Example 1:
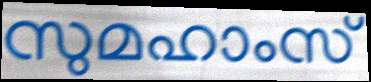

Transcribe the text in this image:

സുമഹാംസ്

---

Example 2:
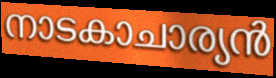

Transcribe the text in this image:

നാടകാചാര്യൻ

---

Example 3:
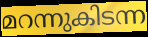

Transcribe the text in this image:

മറന്നുകിടന്ന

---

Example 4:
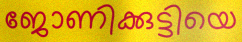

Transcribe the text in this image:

ജോണിക്കുട്ടിയെ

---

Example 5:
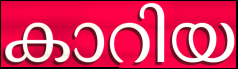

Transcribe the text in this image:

കാറിയ